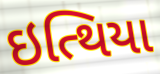
ઇત્થિયા